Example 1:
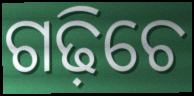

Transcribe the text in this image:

ଗଢ଼ିଚେ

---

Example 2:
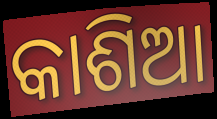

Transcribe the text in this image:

କାଶିଆ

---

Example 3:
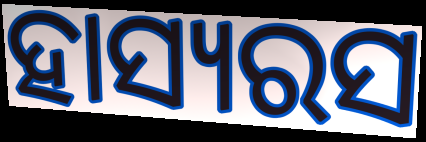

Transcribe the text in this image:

ହାସ୍ୟରସ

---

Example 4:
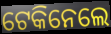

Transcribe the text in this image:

ଟେକିନେଲେ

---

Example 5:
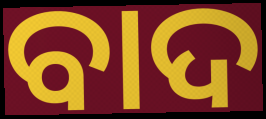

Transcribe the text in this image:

ବାଦ